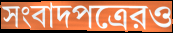
সংবাদপত্রেরও